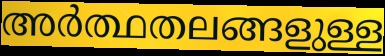
അർത്ഥതലങ്ങളുള്ള